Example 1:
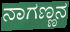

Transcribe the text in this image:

ನಾಗಣ್ಣನ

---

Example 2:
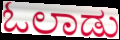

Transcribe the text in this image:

ಓಲಾಡು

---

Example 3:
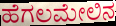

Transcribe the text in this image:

ಹೆಗಲಮೇಲಿನ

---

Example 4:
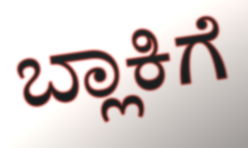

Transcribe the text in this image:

ಬ್ಲಾಕಿಗೆ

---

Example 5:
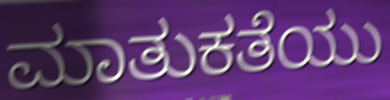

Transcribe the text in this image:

ಮಾತುಕತೆಯು